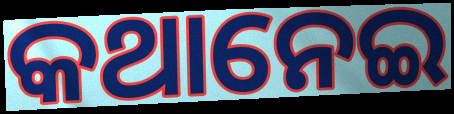
କଥାନେଇ